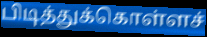
பிடித்துக்கொள்ளச்